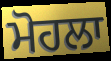
ਮੋਹਲਾ